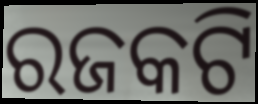
ରଜକଟି